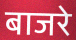
बाजरे